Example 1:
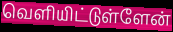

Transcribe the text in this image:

வெளியிட்டுள்ளேன்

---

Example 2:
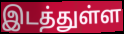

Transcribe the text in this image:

இடத்துள்ள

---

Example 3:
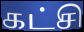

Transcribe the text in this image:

கட்சி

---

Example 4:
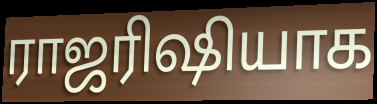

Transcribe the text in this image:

ராஜரிஷியாக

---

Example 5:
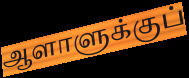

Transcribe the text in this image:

ஆளாளுக்குப்